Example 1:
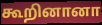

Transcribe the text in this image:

கூறினானா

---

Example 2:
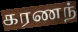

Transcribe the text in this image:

கரணந்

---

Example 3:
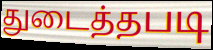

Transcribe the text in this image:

துடைத்தபடி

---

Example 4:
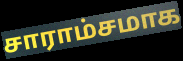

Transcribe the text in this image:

சாராம்சமாக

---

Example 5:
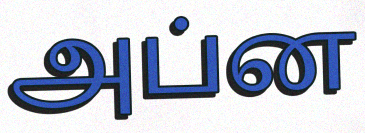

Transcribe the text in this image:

அப்ன